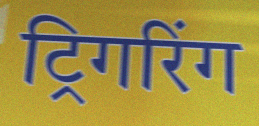
ट्रिगरिंग